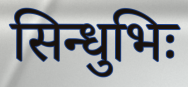
सिन्धुभिः